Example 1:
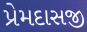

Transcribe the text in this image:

પ્રેમદાસજી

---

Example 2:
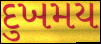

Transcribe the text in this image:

દુખમય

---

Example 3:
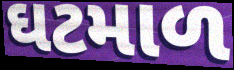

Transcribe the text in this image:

ઘટમાળ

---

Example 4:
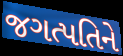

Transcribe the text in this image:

જગત્પતિને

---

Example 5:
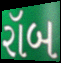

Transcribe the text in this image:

રૉબ